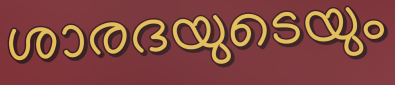
ശാരദയുടെയും